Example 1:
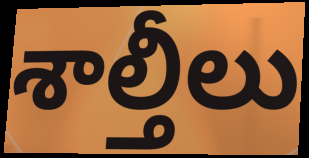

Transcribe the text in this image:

శాల్తీలు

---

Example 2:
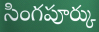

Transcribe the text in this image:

సింగపూర్కు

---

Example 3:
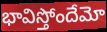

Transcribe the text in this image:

భావిస్తోందేమో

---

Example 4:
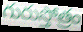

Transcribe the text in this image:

గురుస్తోత్రం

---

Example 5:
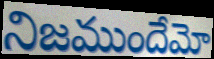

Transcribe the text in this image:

నిజముందేమో